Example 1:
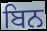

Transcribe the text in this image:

ਬਿਨ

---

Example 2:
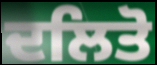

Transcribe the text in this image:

ਦਲਿਤੋ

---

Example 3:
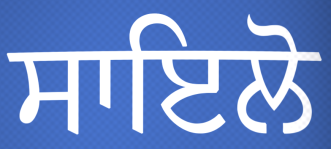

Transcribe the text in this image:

ਸਾਇਲੋ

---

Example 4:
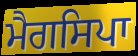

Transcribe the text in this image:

ਮੈਗਸਿਪਾ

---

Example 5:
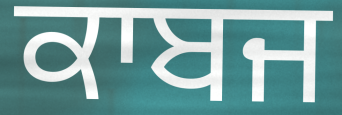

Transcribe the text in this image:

ਕਾਬਜ